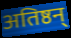
अतिष्ठन्